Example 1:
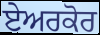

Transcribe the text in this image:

ਏਅਰਕੋਰ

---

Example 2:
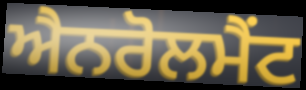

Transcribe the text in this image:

ਐਨਰੋਲਮੈਂਟ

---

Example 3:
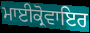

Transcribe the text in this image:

ਮਾਈਕ੍ਰੋਵਾਇਰ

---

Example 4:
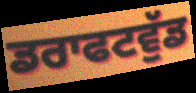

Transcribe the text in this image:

ਡਰਾਫਟਵੁੱਡ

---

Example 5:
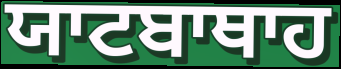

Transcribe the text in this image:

ਯਾਟਬਾਥਾਹ